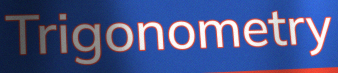
Trigonometry